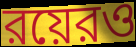
রয়েরও